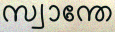
സ്വാന്തേ